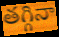
తగ్గినా